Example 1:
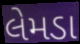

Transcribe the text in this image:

લેમડા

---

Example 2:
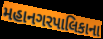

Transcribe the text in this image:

મહાનગરપાલિકાના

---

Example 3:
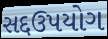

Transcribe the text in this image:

સદ્દઉપયોગ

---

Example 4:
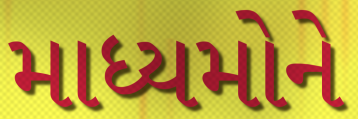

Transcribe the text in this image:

માધ્યમોને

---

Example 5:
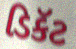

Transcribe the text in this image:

ડિકૅટ